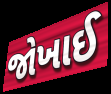
જોખાઈ